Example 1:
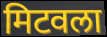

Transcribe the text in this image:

मिटवला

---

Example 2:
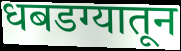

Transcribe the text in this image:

धबडग्यातून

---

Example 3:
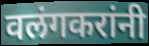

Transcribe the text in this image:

वलंगकरांनी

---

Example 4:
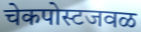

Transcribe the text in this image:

चेकपोस्टजवळ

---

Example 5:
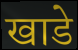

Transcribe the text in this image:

खाडे